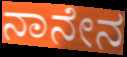
ನಾನೇನ